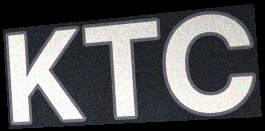
KTC